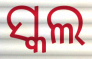
ସ୍କଲ